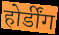
होर्डींग